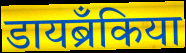
डायब्रँकिया